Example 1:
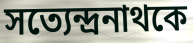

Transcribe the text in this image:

সত্যেন্দ্রনাথকে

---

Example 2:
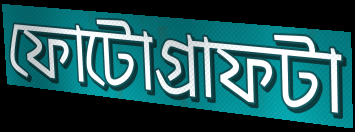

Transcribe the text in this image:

ফোটোগ্রাফটা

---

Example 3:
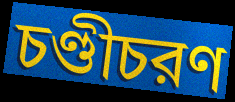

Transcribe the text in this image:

চণ্ডীচরণ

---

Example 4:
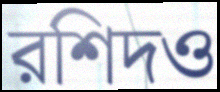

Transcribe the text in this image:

রশিদও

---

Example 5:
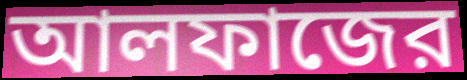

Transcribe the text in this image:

আলফাজের